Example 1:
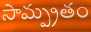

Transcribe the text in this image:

సామ్ప్రతం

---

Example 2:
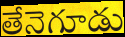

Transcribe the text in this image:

తేనెగూడు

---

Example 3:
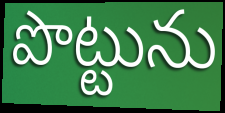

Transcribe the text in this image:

పొట్టును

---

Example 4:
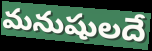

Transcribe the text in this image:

మనుషులదే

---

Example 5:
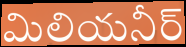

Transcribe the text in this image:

మిలియనీర్